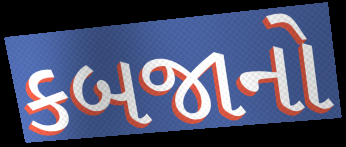
કબજાનો